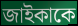
জাইকাকে